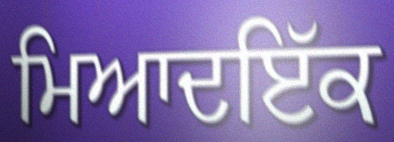
ਮਿਆਦਇੱਕ